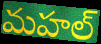
మహల్